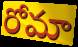
రోమా